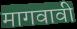
मागवावी